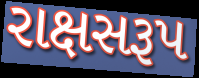
રાક્ષસરૂપ